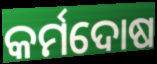
କର୍ମଦୋଷ